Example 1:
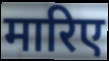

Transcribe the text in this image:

मारिए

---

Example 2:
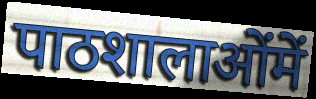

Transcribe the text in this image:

पाठशालाओंमें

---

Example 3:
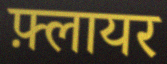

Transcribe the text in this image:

फ़्लायर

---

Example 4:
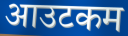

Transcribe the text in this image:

आउटकम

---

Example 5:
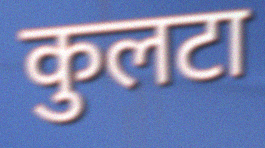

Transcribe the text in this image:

कुलटा